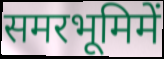
समरभूमिमें